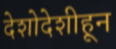
देशोदेशीहून